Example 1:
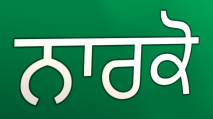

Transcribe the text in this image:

ਨਾਰਕੋ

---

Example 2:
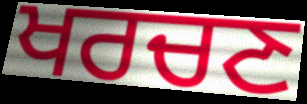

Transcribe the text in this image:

ਖਰਚਣ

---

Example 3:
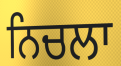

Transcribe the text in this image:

ਨਿਚਲਾ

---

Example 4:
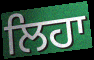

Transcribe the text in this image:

ਲਿਹਾ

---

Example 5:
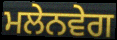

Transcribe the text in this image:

ਮਲੇਨਵੇਗ